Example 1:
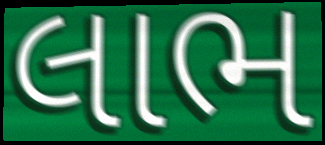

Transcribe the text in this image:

લાભ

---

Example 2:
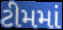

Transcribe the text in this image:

ટીમમાં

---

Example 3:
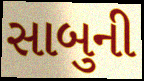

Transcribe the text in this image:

સાબુની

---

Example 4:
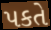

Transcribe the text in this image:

પકતે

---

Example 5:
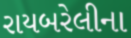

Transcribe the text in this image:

રાયબરેલીના